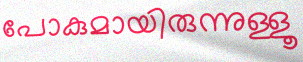
പോകുമായിരുന്നുള്ളൂ